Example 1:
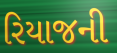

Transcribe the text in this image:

રિયાજની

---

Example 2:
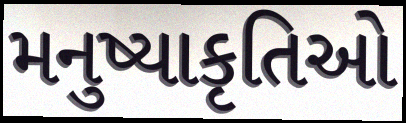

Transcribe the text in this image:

મનુષ્યાકૃતિઓ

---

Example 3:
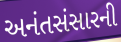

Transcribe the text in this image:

અનંતસંસારની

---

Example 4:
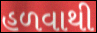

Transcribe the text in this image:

હળવાથી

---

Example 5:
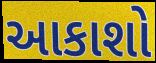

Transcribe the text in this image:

આકાશો